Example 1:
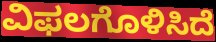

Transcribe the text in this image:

ವಿಫಲಗೊಳಿಸಿದೆ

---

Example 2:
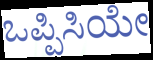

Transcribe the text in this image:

ಒಪ್ಪಿಸಿಯೇ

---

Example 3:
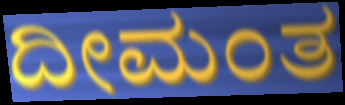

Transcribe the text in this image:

ದೀಮಂತ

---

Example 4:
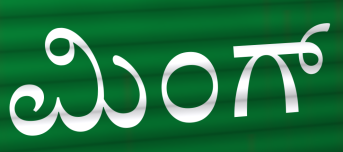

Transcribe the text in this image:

ಮಿಂಗ್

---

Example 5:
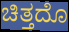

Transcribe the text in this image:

ಚಿತ್ತದೊ